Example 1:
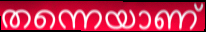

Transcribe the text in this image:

തന്നെയാണ്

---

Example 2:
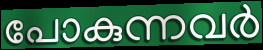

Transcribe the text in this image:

പോകുന്നവർ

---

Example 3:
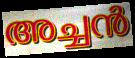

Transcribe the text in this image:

അച്ചൻ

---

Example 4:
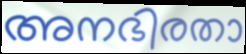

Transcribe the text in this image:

അനഭിരതാ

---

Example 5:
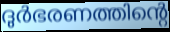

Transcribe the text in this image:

ദുർഭരണത്തിന്റെ